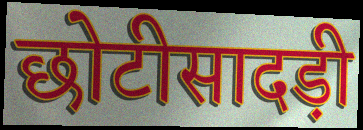
छोटीसादड़ी